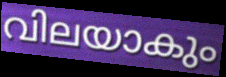
വിലയാകും